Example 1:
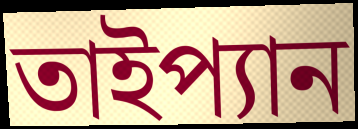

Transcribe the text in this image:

তাইপ্যান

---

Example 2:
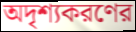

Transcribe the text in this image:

অদৃশ্যকরণের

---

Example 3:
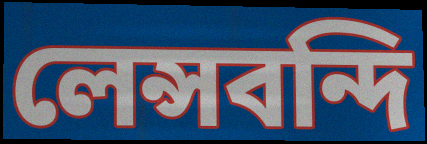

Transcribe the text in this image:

লেন্সবন্দি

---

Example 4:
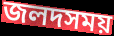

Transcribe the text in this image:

জলদসময়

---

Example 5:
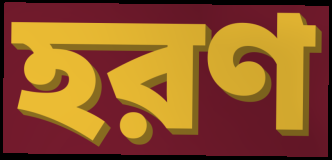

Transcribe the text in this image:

হরণ